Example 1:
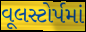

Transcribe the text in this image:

વૂલસ્ટોર્પમાં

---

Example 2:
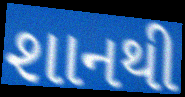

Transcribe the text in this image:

શાનથી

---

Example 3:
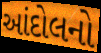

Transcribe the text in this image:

આંદોલનો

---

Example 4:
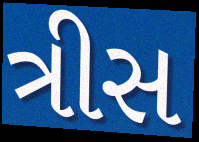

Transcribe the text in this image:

ત્રીસ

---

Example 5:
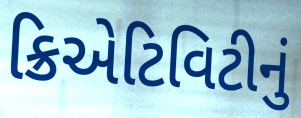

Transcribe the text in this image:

ક્રિએટિવિટીનું